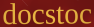
docstoc